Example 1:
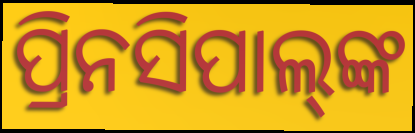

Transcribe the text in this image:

ପ୍ରିନସିପାଲ୍‍ଙ୍କ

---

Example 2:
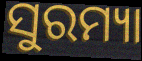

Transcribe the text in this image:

ସୁରମ୍ୟା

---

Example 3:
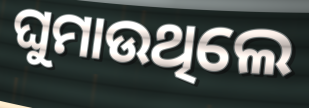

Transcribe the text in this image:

ଘୁମାଉଥିଲେ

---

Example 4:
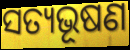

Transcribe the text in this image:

ସତ୍ୟଭୂଷଣ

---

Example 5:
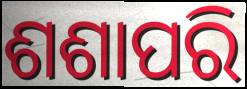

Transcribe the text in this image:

ଶଶାପରି